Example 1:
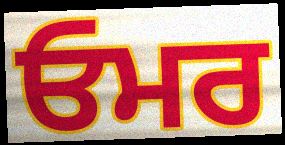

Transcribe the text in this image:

ਓਮਰ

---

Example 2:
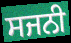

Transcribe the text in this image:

ਸਜਨੀ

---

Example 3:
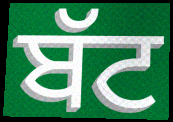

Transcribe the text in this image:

ਬੱਟ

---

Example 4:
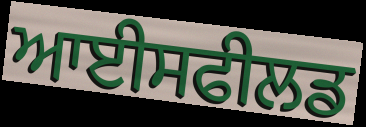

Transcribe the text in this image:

ਆਈਸਫੀਲਡ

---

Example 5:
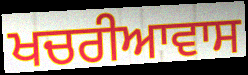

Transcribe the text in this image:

ਖਚਰੀਆਵਾਸ